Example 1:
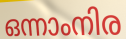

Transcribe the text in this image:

ഒന്നാംനിര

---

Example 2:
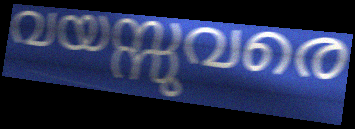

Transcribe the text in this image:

വയസ്സുവരെ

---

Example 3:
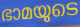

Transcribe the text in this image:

ഭാമയുടെ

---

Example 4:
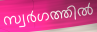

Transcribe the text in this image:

സ്വർഗത്തിൽ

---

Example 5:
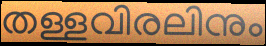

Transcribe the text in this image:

തള്ളവിരലിനും